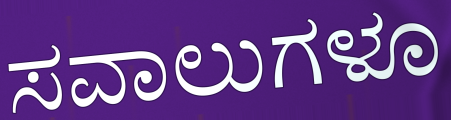
ಸವಾಲುಗಳೂ